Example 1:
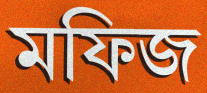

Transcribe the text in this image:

মফিজ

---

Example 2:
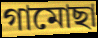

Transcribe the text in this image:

গামোছা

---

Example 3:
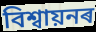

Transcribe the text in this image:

বিশ্বায়নৰ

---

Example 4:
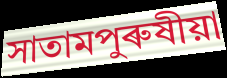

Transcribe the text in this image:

সাতামপুৰুষীয়া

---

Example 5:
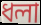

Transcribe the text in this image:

ধলা